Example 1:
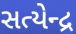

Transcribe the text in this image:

સત્યેન્દ્ર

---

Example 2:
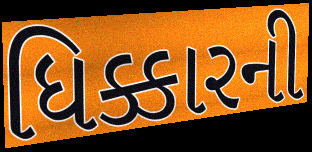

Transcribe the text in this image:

ધિક્કારની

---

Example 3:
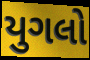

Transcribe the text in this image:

યુગલો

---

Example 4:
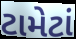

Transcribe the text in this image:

ટામેટાં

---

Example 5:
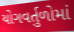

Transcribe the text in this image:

યોગવર્તુળોમાં